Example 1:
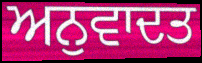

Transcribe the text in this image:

ਅਨੁਵਾਦਤ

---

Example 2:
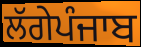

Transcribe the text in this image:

ਲੱਗੇਪੰਜਾਬ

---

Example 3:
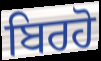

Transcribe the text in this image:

ਬਿਰਹੋ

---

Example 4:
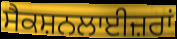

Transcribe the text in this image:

ਸੈਕਸ਼ਨਲਾਈਜ਼ਰਾਂ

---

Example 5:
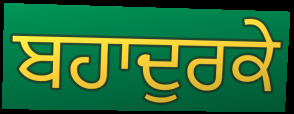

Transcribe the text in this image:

ਬਹਾਦੁਰਕੇ